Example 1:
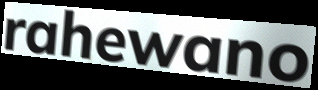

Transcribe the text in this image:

rahewano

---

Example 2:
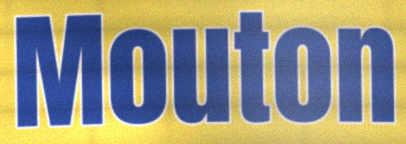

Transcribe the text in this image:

Mouton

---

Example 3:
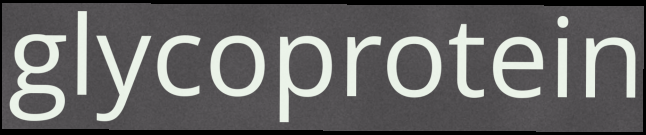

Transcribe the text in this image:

glycoprotein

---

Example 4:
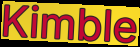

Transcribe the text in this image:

Kimble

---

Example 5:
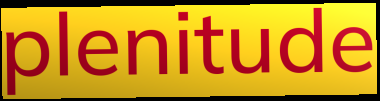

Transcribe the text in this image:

plenitude